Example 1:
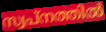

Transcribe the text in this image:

സ്വപ്നത്തിൽ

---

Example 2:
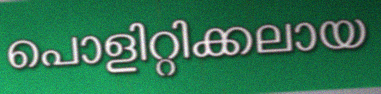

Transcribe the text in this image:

പൊളിറ്റിക്കലായ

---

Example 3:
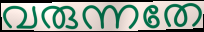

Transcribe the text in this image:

വരുന്നതേ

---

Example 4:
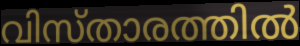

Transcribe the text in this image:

വിസ്താരത്തിൽ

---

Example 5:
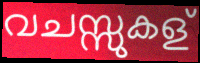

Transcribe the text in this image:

വചസ്സുകള്